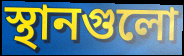
স্থানগুলো